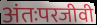
अंतःपरजीवी